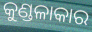
କୁଣ୍ଡଳାକାର